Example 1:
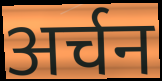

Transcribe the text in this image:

अर्चन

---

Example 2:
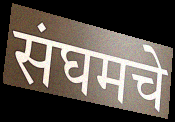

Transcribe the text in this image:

संघमचे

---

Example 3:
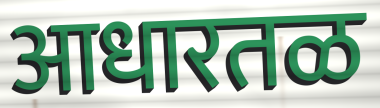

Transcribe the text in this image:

आधारतळ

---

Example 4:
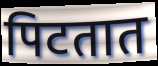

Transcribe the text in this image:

पिटतात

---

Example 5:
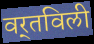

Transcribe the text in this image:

वर्तविली